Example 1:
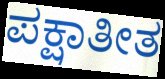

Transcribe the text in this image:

ಪಕ್ಷಾತೀತ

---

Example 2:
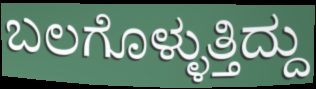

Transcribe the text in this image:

ಬಲಗೊಳ್ಳುತ್ತಿದ್ದು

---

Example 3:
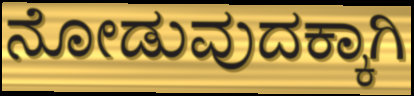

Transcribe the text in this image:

ನೋಡುವುದಕ್ಕಾಗಿ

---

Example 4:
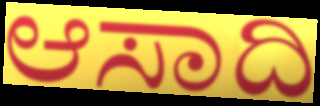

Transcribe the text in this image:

ಆಸಾದಿ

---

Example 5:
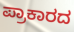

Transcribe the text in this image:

ಪ್ರಾಕಾರದ